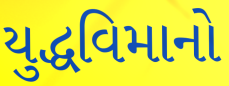
યુદ્ધવિમાનો